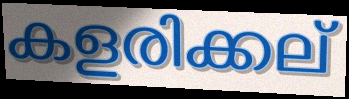
കളരിക്കല്